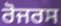
ਰੋਜਰਸ